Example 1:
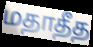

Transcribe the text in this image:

மதாதீத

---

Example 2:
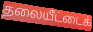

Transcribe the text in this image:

தலையீட்டைக்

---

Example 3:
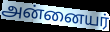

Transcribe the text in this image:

அன்னையர்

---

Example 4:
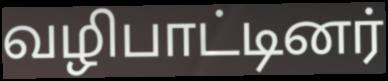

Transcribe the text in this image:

வழிபாட்டினர்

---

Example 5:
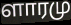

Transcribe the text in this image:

ளாரமு